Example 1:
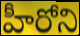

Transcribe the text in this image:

హీరోని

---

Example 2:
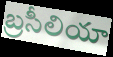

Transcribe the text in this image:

బ్రసీలియా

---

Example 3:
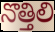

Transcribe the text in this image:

నొత్తిలి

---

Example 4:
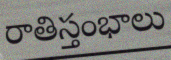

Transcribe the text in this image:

రాతిస్తంభాలు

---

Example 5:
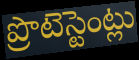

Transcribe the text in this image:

ప్రొటెస్టెంట్లు